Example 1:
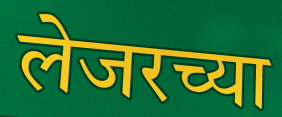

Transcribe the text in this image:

लेजरच्या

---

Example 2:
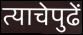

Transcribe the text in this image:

त्याचेपुढें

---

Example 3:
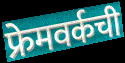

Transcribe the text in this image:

फ्रेमवर्कची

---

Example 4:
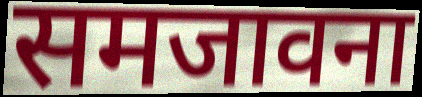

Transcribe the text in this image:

समजावना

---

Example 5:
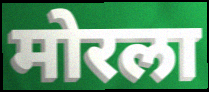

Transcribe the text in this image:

मोरला